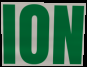
ION